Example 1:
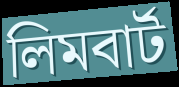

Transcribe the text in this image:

লিমবার্ট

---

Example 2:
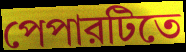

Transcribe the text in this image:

পেপারটিতে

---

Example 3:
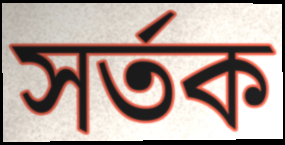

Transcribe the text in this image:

সর্তক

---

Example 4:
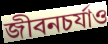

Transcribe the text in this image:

জীবনচর্যাও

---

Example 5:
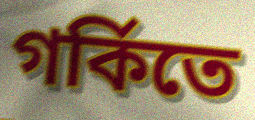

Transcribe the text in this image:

গর্কিতে